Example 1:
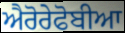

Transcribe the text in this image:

ਐਰੋਰੇਫੋਬੀਆ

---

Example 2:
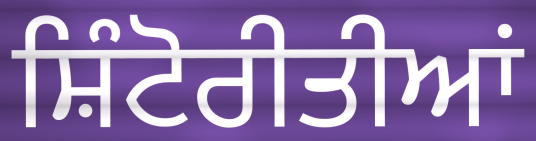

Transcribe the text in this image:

ਸ਼ਿੰਟੋਰੀਤੀਆਂ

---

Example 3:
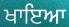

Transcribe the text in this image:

ਖਾਇਆ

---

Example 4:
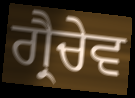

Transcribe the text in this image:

ਗ੍ਰੈਚੇਵ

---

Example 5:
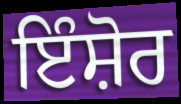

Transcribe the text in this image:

ਇੰਸ਼ੋਰ